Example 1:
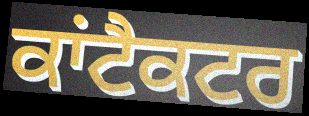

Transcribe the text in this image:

ਕਾਂਟੈਕਟਰ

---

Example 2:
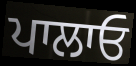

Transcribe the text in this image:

ਪਾਲਾਓ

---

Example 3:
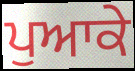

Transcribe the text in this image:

ਪੁਆਕੇ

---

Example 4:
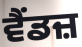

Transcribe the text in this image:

ਵੈਂਡਜ਼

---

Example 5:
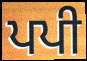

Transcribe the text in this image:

ਪਪੀ